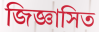
জিজ্ঞাসিত